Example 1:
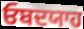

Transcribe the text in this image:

ਓਬਦਯਾਹ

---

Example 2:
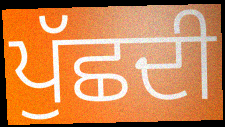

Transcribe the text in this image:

ਪੁੱਛਦੀ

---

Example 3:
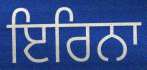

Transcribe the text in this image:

ਇਰਿਨਾ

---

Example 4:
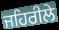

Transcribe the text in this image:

ਜਹਿਰੀਲੇ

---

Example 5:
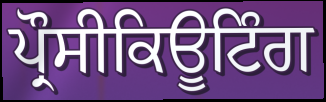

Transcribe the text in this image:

ਪ੍ਰੌਸੀਕਿਊਟਿੰਗ